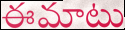
ఈమాటు